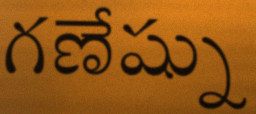
గణేష్ను